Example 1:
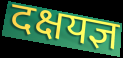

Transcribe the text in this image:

दक्षयज्ञ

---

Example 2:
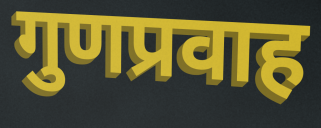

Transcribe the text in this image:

गुणप्रवाह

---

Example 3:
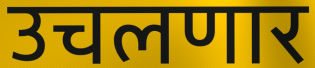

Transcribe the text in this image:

उचलणार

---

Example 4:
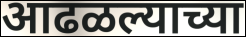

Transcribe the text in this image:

आढळल्याच्या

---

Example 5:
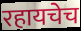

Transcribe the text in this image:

रहायचेच